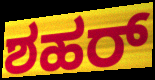
ಶಹರ್